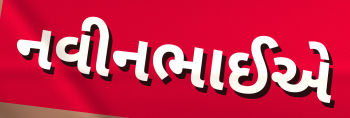
નવીનભાઈએ